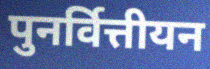
पुनर्वित्तीयन